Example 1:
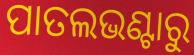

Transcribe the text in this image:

ପାତଲଭଣ୍ଟାରୁ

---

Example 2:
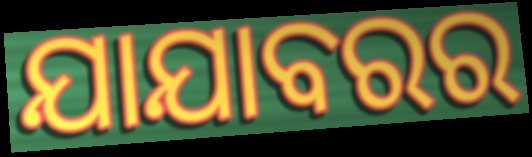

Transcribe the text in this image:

ଯାଯାବରର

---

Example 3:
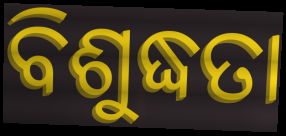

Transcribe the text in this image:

ବିଶୁଦ୍ଧତା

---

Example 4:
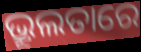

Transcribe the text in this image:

ଭ୍ରୂଲତାରେ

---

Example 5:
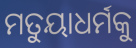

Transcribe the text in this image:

ମତୁୟାଧର୍ମକୁ